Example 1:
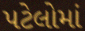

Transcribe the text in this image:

પટેલોમાં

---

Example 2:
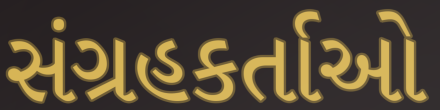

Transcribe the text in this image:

સંગ્રહકર્તાઓ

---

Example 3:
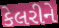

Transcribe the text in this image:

કેલરીને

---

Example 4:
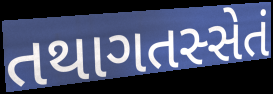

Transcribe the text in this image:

તથાગતસ્સેતં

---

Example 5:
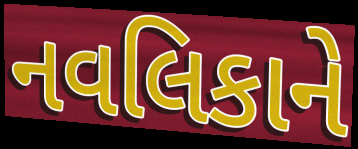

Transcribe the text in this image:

નવલિકાને